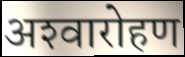
अश्वारोहण